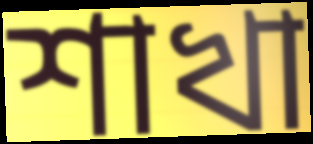
শাখা